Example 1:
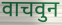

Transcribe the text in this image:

वाचवुन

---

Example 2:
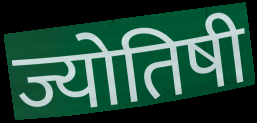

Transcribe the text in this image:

ज्योतिषी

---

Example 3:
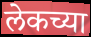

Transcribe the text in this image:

लेकच्या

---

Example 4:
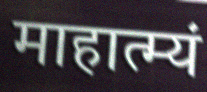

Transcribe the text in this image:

माहात्म्यं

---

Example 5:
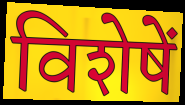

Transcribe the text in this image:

विशेषें